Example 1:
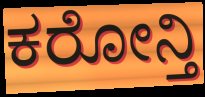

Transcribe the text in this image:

ಕರೋನ್ತಿ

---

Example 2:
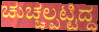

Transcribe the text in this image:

ಚುಚ್ಚಲ್ಪಟ್ಟಿದ್ದ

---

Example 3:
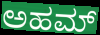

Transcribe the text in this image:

ಅಹಮ್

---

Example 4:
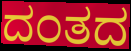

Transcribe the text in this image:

ದಂತದ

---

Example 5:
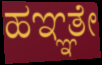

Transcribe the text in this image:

ಹಞ್ಞತೇ